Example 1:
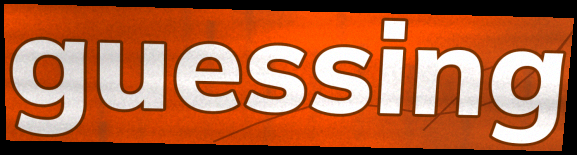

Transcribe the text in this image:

guessing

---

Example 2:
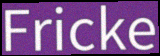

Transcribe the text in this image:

Fricke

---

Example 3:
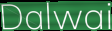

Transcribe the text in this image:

Dalwai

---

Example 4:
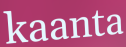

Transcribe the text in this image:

kaanta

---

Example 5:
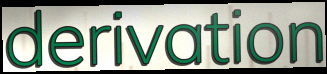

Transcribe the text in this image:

derivation